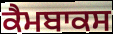
ਕੈਮਬਾਕਸ